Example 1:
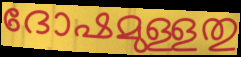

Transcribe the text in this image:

ദോഷമുള്ളതു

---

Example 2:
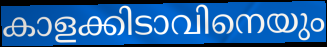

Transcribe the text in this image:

കാളക്കിടാവിനെയും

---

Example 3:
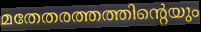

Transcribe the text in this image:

മതേതരത്തത്തിന്റെയും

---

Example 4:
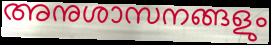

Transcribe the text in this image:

അനുശാസനങ്ങളും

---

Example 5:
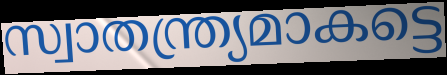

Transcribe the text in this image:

സ്വാതന്ത്ര്യമാകട്ടെ